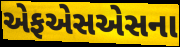
એફએસએસના